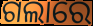
ଗଲାରେ